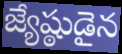
జ్యేష్ఠుడైన